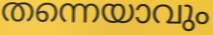
തന്നെയാവും